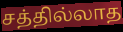
சத்தில்லாத